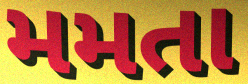
મમતા